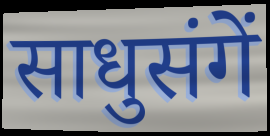
साधुसंगें